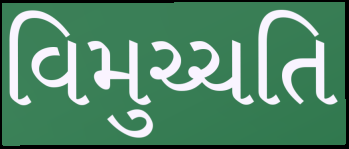
વિમુચ્ચતિ